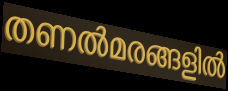
തണൽമരങ്ങളിൽ